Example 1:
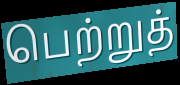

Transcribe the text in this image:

பெற்றுத்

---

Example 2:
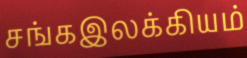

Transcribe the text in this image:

சங்கஇலக்கியம்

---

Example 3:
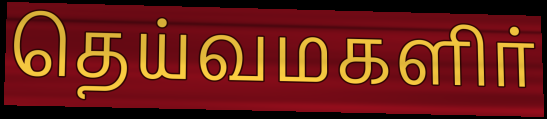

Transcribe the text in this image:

தெய்வமகளிர்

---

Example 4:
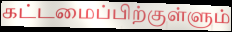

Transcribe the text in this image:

கட்டமைப்பிற்குள்ளும்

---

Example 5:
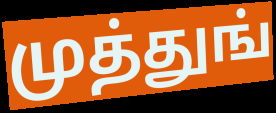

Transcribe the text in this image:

முத்துங்